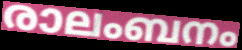
രാലംബനം